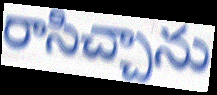
రాసిచ్చాను